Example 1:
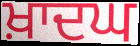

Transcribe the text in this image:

ਖ਼ਾਦਘ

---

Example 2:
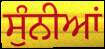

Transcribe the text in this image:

ਸੁੰਨੀਆਂ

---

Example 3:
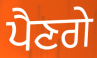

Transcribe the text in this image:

ਪੈਣਗੇ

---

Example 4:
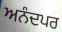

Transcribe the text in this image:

ਅਨੰਦਪਰ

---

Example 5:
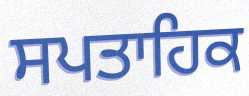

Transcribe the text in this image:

ਸਪਤਾਹਿਕ